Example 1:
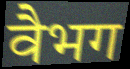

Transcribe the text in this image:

वैभग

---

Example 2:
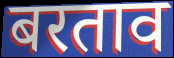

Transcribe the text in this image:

बरताव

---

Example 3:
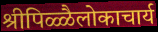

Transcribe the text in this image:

श्रीपिळ्ळैलोकाचार्य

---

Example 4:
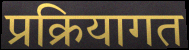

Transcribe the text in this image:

प्रक्रियागत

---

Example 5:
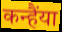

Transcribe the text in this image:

कन्हैंया